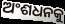
ଅଂଶଧନକୁ